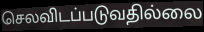
செலவிடப்படுவதில்லை